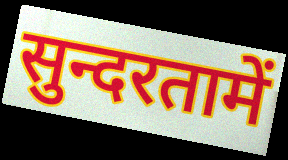
सुन्दरतामें